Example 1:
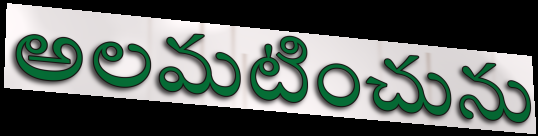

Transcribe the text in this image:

అలమటించును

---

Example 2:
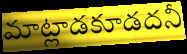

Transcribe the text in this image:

మాట్లాడకూడదనీ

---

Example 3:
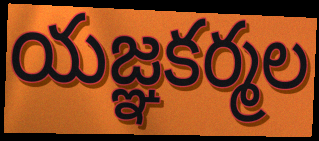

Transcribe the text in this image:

యజ్ఞకర్మల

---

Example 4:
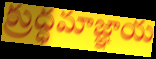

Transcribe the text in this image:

క్రుద్ధమాజ్ఞాయ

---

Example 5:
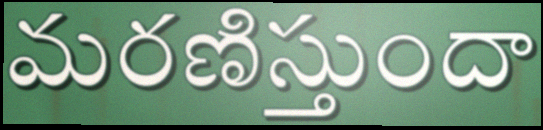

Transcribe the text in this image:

మరణిస్తుందా